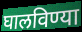
घालविण्या